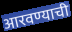
आरवण्याची